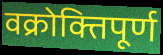
वक्रोक्तिपूर्ण